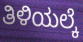
ತಿಳಿಯಲ್ಕೆ